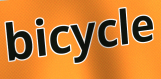
bicycle